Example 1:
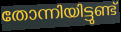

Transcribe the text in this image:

തോന്നിയിട്ടുണ്ട്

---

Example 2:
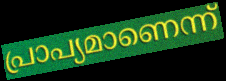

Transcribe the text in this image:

പ്രാപ്യമാണെന്ന്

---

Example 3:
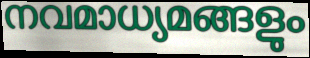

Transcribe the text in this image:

നവമാധ്യമങ്ങളും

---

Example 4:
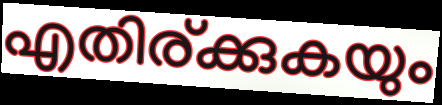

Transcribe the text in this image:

എതിര്ക്കുകയും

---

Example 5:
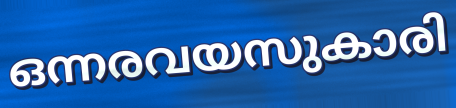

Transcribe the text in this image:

ഒന്നരവയസുകാരി